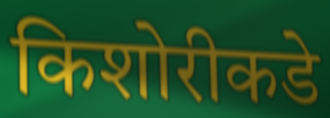
किशोरीकडे